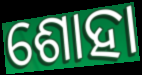
ଶୋହା